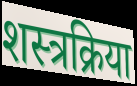
शस्त्रक्रिया